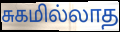
சுகமில்லாத